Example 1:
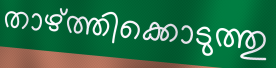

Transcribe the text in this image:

താഴ്ത്തിക്കൊടുത്തു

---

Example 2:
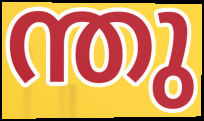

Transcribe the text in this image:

ന്തു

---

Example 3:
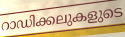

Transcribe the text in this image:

റാഡിക്കലുകളുടെ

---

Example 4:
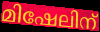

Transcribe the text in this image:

മിഷേലിന്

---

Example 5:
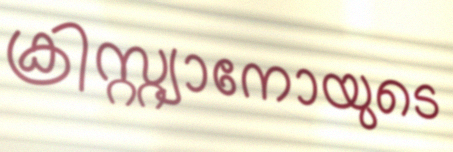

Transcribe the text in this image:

ക്രിസ്റ്റ്യാനോയുടെ